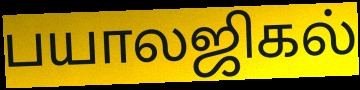
பயாலஜிகல்